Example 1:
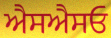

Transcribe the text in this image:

ਐਸਐਸਓ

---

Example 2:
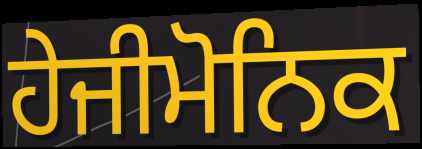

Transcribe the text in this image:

ਹੇਜੀਮੋਨਿਕ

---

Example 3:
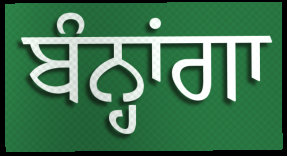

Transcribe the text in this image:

ਬੰਨ੍ਹਾਂਗਾ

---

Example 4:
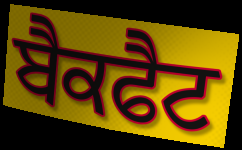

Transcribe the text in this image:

ਬੈਕਫੈਟ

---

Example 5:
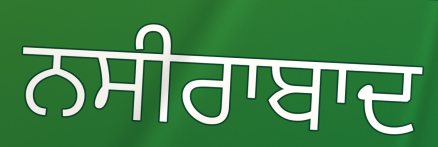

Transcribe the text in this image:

ਨਸੀਰਾਬਾਦ